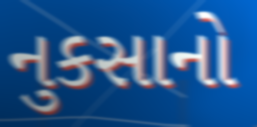
નુકસાનો